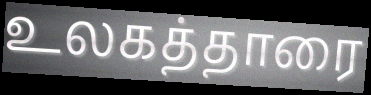
உலகத்தாரை